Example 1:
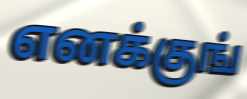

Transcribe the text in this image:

எனக்குங்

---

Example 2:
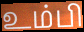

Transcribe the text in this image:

உம்பி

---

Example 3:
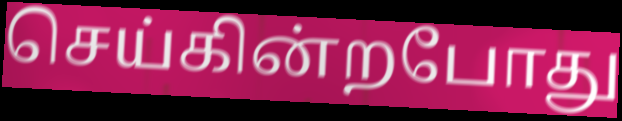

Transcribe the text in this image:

செய்கின்றபோது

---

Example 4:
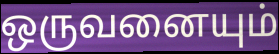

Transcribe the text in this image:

ஒருவனையும்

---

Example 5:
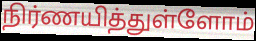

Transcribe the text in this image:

நிர்ணயித்துள்ளோம்